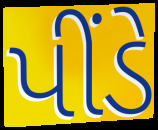
પીંડે